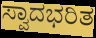
ಸ್ವಾದಭರಿತ